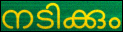
നടിക്കും